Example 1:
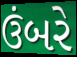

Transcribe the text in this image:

ઉંબરે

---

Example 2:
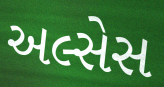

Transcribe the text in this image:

અલ્સેસ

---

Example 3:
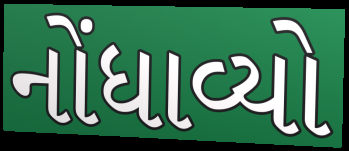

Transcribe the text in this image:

નોંધાવ્યો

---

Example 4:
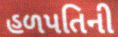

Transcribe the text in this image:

હળપતિની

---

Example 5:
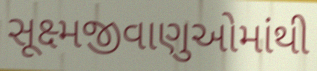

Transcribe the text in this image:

સૂક્ષ્મજીવાણુઓમાંથી